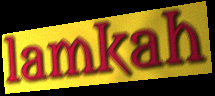
lamkah